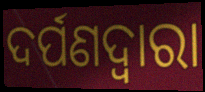
ଦର୍ପଣଦ୍ୱାରା